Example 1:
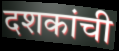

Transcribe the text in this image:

दशकांची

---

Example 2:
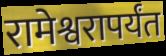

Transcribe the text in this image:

रामेश्वरापर्यंत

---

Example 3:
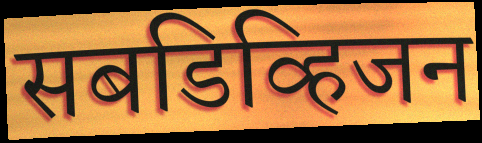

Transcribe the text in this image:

सबडिव्हिजन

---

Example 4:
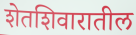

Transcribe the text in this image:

शेतशिवारातील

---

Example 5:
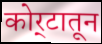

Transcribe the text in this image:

कोर्टातून